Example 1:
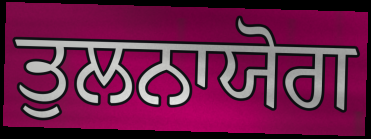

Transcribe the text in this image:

ਤੁਲਨਾਯੋਗ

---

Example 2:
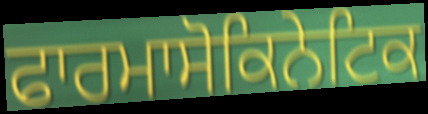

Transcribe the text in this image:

ਫਾਰਮਾਸੋਕਿਨੇਟਿਕ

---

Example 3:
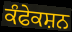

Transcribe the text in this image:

ਕੰਫੇਕਸ਼ਨ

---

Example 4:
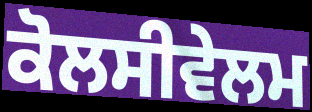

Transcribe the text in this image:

ਕੋਲਸੀਵੇਲਮ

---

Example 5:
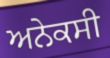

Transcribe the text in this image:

ਅਨੇਕਸੀ